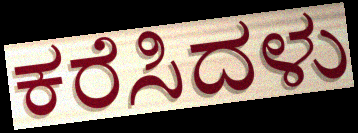
ಕರೆಸಿದಳು